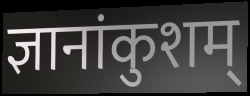
ज्ञानांकुशम्